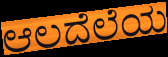
ಆಲದೆಲೆಯ